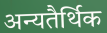
अन्यतैर्थिक